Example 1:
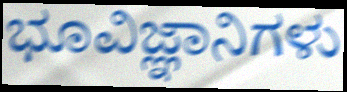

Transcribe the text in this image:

ಭೂವಿಜ್ಞಾನಿಗಳು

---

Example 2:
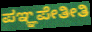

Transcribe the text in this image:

ಪಞ್ಞಪೇತೀತಿ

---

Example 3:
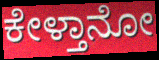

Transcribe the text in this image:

ಕೇಳ್ತಾನೋ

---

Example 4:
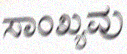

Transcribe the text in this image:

ಸಾಂಖ್ಯವು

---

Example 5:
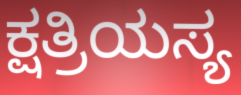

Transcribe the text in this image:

ಕ್ಷತ್ರಿಯಸ್ಯ